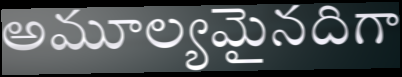
అమూల్యమైనదిగా